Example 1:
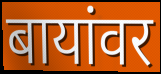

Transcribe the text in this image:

बायांवर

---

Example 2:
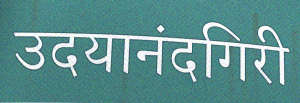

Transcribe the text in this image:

उदयानंदगिरी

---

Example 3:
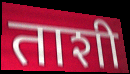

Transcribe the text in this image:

ताशी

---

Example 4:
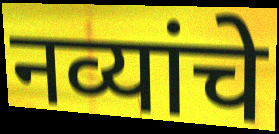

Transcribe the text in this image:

नव्यांचे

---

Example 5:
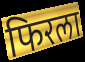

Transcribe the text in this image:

फिरला